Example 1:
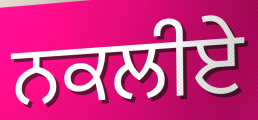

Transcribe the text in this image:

ਨਕਲੀਏ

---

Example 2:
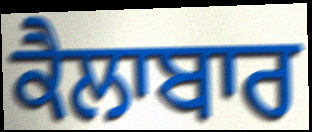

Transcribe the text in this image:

ਕੈਲਾਬਾਰ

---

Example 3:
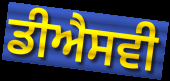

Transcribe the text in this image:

ਡੀਐਸਵੀ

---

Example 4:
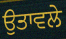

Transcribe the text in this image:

ਉਤਾਵਲੇ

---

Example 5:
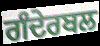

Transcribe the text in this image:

ਗੰਦੇਰਬਲ